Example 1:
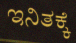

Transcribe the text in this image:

ಇನಿತಕ್ಕೆ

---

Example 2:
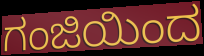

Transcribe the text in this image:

ಗಂಜಿಯಿಂದ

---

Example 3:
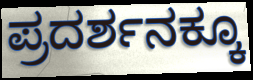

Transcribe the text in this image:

ಪ್ರದರ್ಶನಕ್ಕೂ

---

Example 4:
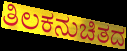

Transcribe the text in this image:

ತಿಲಕನುಚಿತದ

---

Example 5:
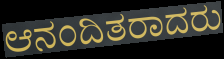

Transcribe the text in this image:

ಆನಂದಿತರಾದರು